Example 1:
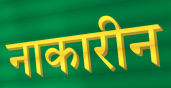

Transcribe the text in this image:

नाकारीन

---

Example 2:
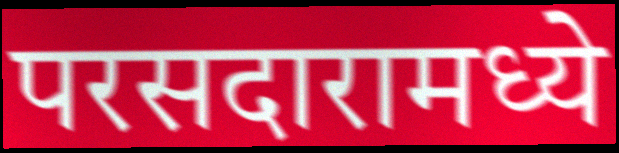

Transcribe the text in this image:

परसदारामध्ये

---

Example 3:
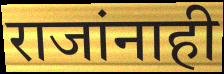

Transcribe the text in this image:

राजांनाही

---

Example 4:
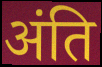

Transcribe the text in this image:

अंति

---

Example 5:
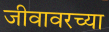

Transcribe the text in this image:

जीवावरच्या